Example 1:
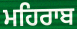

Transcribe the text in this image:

ਮਹਿਰਾਬ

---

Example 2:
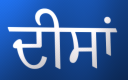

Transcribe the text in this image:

ਦੀਸਾਂ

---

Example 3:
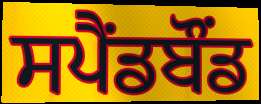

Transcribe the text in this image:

ਸਪੈਂਡਬੌਂਡ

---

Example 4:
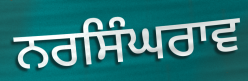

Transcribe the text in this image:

ਨਰਸਿੰਘਰਾਵ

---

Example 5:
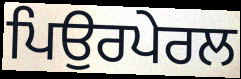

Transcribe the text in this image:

ਪਿਉਰਪੇਰਲ